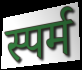
स्पर्म